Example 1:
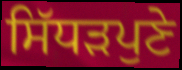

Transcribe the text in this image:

ਸਿੱਧੜਪੁਣੇ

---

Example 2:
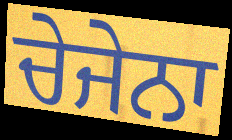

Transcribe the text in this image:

ਚੇਜੇਨਾ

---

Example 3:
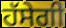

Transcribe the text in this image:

ਹੱਸੇਗੀ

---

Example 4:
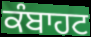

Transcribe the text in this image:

ਕੰਬਾਹਟ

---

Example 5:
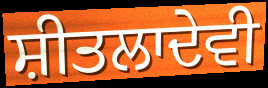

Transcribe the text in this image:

ਸ਼ੀਤਲਾਦੇਵੀ